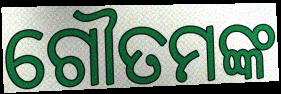
ଗୌତମଙ୍କ